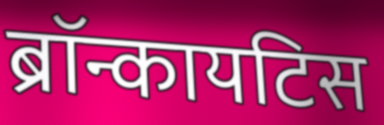
ब्रॉन्कायटिस